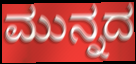
ಮುನ್ನದ